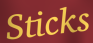
Sticks